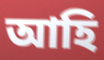
আহি